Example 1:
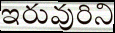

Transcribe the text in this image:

ఇరువురిని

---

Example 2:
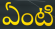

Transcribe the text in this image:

ఏంటి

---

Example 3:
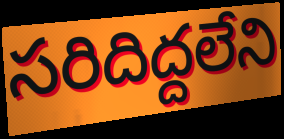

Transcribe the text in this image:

సరిదిద్దలేని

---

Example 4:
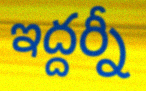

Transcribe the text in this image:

ఇద్దర్నీ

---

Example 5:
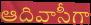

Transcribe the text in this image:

ఆదివాసీగా